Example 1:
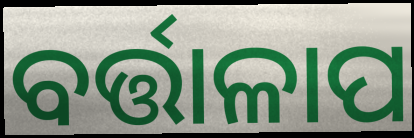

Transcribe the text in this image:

ବର୍ତ୍ତାଳାପ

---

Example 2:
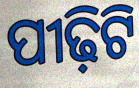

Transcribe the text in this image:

ପୀଢ଼ିଟି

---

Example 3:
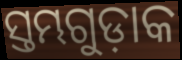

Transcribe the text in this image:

ସ୍ତମ୍ଭଗୁଡ଼ାକ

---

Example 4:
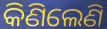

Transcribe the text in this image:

କିଣିଲେଣି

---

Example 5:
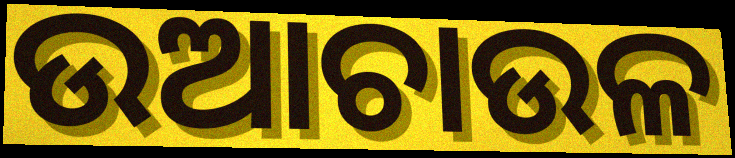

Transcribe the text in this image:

ଉଆଚାଉଳ